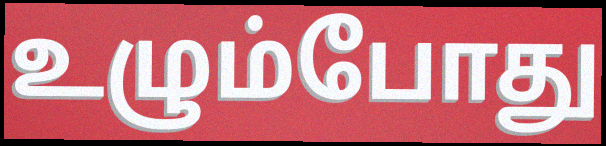
உழும்போது